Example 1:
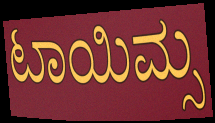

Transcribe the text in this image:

ಟಾಯಿಮ್ಸ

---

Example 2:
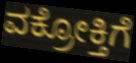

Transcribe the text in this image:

ವಕ್ರೋಕ್ತಿಗೆ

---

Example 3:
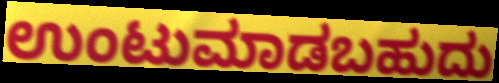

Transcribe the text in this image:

ಉಂಟುಮಾಡಬಹುದು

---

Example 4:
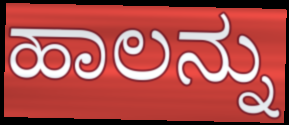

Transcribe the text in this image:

ಹಾಲನ್ನು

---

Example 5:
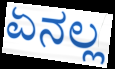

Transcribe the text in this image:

ಏನಲ್ಲ